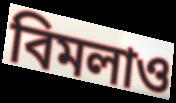
বিমলাও